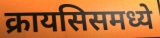
क्रायसिसमध्ये